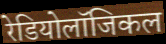
रेडियोलॉजिकल